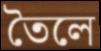
তৈলে